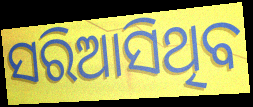
ସରିଆସିଥିବ